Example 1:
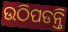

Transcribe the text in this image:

ଉଠିପଡନ୍ତି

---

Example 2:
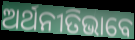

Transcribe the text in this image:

ଅର୍ଥନୀତିଭାବେ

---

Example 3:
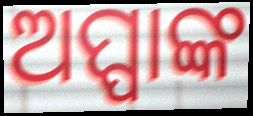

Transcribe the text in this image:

ଅପ୍ପାଙ୍କ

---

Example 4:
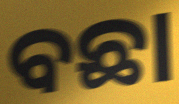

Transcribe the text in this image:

ବଛା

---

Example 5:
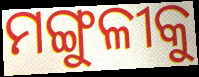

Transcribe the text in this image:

ମଙ୍ଗୁଳୀକୁ